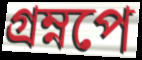
গ্রম্নপে